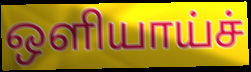
ஒளியாய்ச்